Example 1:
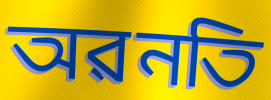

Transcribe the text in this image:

অৱনতি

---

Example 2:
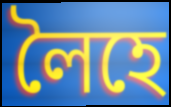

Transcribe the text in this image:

লৈহে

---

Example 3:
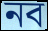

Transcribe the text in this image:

নব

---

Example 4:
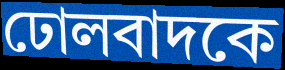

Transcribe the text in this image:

ঢোলবাদকে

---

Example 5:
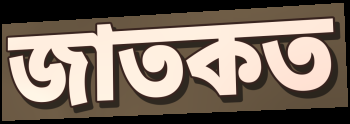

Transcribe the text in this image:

জাতকত